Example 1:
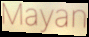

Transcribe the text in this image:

Mayan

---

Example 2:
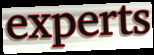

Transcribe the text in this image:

experts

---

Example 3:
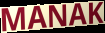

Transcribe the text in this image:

MANAK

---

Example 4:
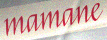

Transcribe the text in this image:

mamane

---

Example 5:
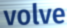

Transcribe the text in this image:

volve